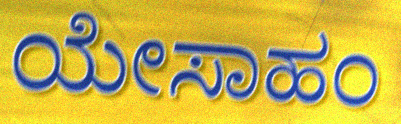
ಯೇಸಾಹಂ